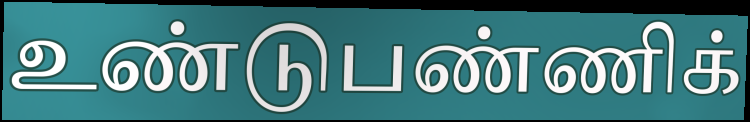
உண்டுபண்ணிக்